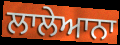
ਲਾਲੇਆਨਾ